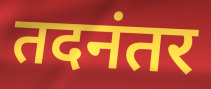
तदनंतर